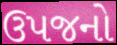
ઉપજનો